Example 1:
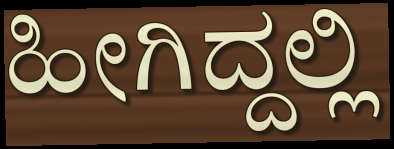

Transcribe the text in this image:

ಹೀಗಿದ್ದಲ್ಲಿ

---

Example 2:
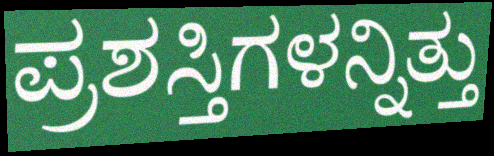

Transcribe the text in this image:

ಪ್ರಶಸ್ತಿಗಳನ್ನಿತ್ತು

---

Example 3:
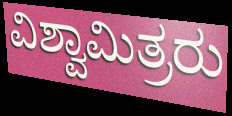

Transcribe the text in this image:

ವಿಶ್ವಾಮಿತ್ರರು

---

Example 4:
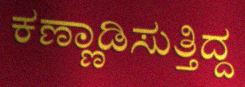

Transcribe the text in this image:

ಕಣ್ಣಾಡಿಸುತ್ತಿದ್ದ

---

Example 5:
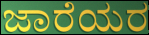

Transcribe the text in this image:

ಜಾರೆಯರ